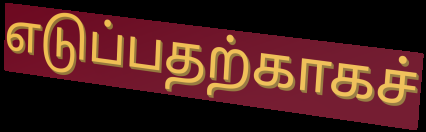
எடுப்பதற்காகச்